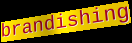
brandishing